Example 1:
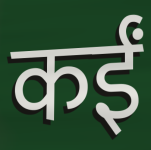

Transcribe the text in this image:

कईं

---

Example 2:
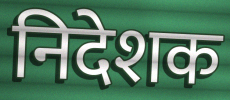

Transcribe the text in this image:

निदेशक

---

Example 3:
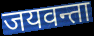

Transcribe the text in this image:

जयवन्ता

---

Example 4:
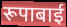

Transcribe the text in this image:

रूपाबाई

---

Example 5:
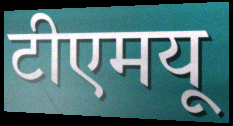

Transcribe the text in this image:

टीएमयू